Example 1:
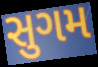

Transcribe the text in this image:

સુગમ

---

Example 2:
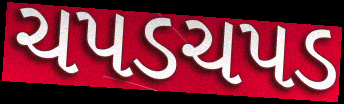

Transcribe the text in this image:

ચપડચપડ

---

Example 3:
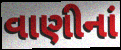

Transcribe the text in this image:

વાણીનાં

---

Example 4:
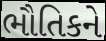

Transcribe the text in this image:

ભૌતિકને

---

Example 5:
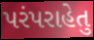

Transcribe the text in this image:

પરંપરાહેતુ